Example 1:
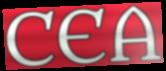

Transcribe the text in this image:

CEA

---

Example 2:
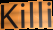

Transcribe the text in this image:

Killi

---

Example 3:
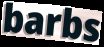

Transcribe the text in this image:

barbs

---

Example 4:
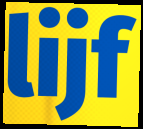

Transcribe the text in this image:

lijf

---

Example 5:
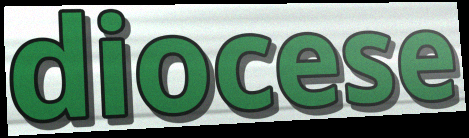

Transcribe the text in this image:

diocese